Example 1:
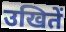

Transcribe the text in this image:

उखितें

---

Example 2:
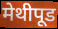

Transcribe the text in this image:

मेथीपूड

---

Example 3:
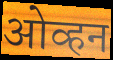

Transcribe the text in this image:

ओव्हन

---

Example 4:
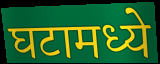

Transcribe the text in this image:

घटामध्ये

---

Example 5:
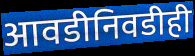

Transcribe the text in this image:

आवडीनिवडीही